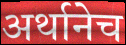
अर्थानेच